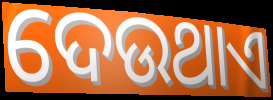
ଦେଉଥାଏ